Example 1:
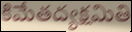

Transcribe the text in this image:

కిమేతద్యక్షమితి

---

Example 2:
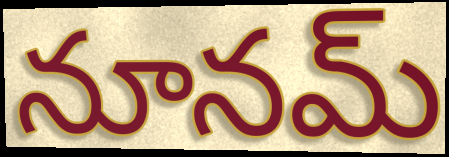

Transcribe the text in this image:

నూనమ్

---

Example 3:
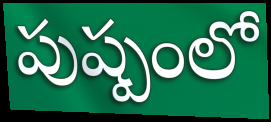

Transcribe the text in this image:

పుష్పంలో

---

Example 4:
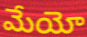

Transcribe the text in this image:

మేయో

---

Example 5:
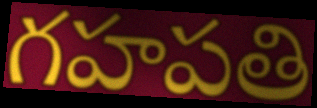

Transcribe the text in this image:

గహపతి